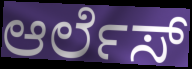
ಆರ್ಲೆಸ್